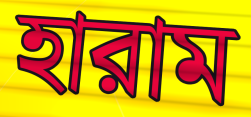
হারাম